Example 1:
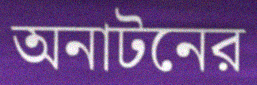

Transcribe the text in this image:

অনাটনের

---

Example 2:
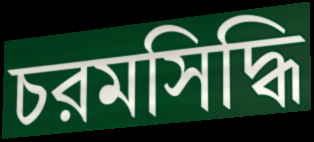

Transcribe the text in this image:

চরমসিদ্ধি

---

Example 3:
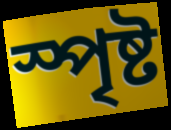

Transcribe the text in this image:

স্পৃষ্ট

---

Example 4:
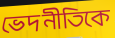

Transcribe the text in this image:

ভেদনীতিকে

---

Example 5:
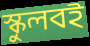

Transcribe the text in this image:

স্কুলবই